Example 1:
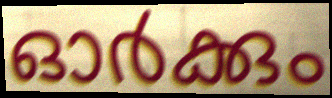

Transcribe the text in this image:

ഓർക്കും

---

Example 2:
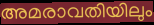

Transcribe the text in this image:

അമരാവതിയിലും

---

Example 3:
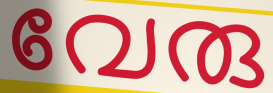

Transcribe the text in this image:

വേരു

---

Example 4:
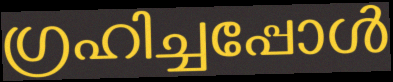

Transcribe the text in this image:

ഗ്രഹിച്ചപ്പോൾ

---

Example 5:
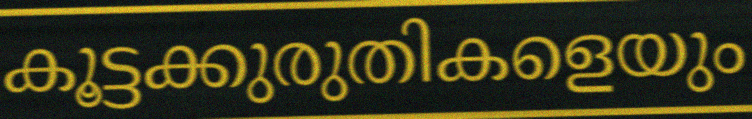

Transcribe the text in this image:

കൂട്ടക്കുരുതികളെയും